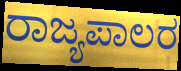
ರಾಜ್ಯಪಾಲರ